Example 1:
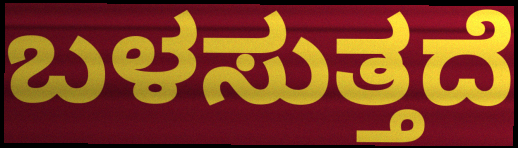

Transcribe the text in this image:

ಬಳಸುತ್ತದೆ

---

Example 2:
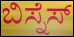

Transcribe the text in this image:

ಬಿಸ್ನೆಸ್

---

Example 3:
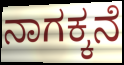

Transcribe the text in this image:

ನಾಗಕ್ಕನೆ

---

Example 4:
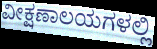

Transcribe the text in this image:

ವೀಕ್ಷಣಾಲಯಗಳಲ್ಲಿ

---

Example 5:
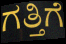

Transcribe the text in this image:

ಗತ್ತಿಗೆ